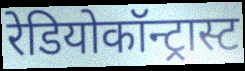
रेडियोकॉन्ट्रास्ट